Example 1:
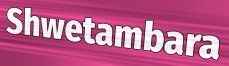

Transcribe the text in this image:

Shwetambara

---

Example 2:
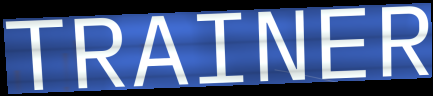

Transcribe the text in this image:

TRAINER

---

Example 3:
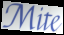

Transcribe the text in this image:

Mite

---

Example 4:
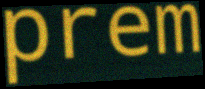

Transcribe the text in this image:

prem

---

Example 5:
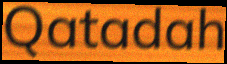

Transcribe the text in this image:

Qatadah